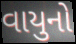
વાયુનો